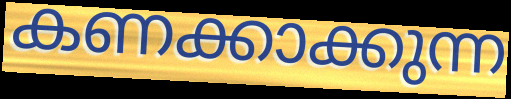
കണക്കാക്കുന്ന